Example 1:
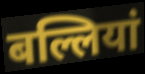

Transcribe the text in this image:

बल्लियां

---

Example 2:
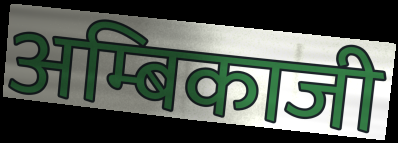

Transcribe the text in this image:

अम्बिकाजी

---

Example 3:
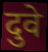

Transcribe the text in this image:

दुवे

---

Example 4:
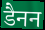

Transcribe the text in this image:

डैनन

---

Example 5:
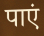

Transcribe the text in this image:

पाएं